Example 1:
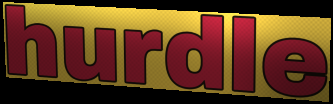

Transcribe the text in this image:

hurdle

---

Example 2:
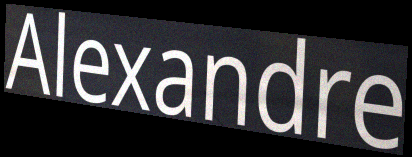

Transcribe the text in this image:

Alexandre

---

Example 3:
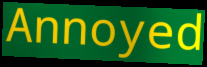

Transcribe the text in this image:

Annoyed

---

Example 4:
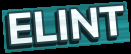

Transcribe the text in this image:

ELINT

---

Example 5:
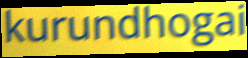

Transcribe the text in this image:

kurundhogai